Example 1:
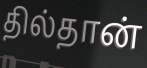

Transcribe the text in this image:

தில்தான்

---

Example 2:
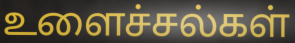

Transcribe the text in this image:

உளைச்சல்கள்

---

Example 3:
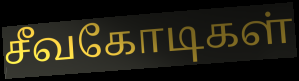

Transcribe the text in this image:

சீவகோடிகள்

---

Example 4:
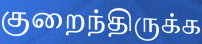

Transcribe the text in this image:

குறைந்திருக்க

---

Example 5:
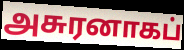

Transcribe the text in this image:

அசுரனாகப்